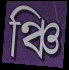
ঞ্চি